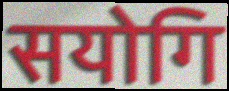
सयोगि